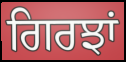
ਗਿਰਝਾਂ